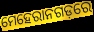
ମେହେରାନଗଡ଼ରେ